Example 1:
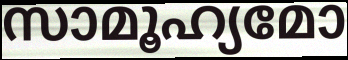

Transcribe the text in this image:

സാമൂഹ്യമോ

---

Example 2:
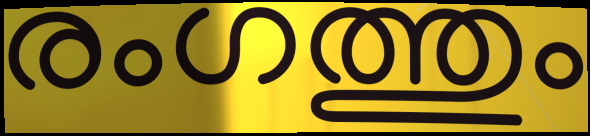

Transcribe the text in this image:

രംഗത്തും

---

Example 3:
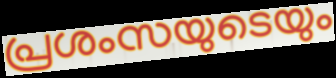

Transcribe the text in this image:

പ്രശംസയുടെയും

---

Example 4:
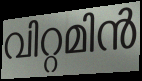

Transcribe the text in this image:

വിറ്റമിൻ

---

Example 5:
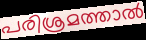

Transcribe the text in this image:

പരിശ്രമത്താൽ